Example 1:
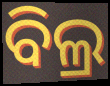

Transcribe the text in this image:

ବିଲ୍ର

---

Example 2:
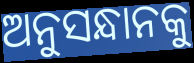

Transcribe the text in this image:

ଅନୁସନ୍ଧାନକୁ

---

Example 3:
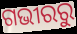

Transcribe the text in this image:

ଗଭୀରରୁ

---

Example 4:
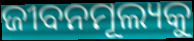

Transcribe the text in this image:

ଜୀବନମୂଲ୍ୟକୁ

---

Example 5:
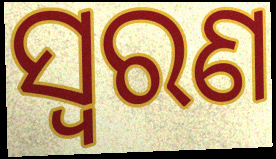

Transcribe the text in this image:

ସ୍ୱରଣ